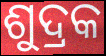
ଶୁଦ୍ରକ